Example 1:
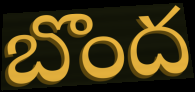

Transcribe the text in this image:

బొంద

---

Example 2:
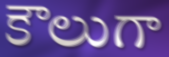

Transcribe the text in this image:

కౌలుగా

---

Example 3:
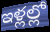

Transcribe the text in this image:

ఇళ్లల్లో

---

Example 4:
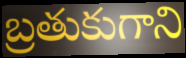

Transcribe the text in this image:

బ్రతుకుగాని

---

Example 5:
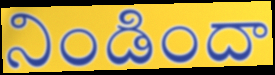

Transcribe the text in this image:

నిండిందా